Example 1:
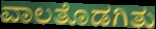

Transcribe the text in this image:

ವಾಲತೊಡಗಿತು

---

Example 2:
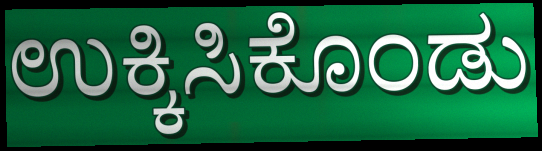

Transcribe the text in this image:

ಉಕ್ಕಿಸಿಕೊಂಡು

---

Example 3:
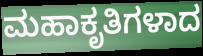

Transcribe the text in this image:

ಮಹಾಕೃತಿಗಳಾದ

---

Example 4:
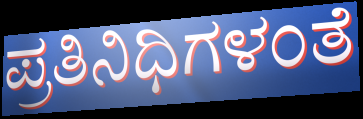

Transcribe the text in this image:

ಪ್ರತಿನಿಧಿಗಳಂತೆ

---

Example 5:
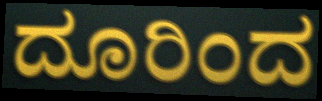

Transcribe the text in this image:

ದೂರಿಂದ